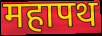
महापथ